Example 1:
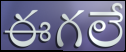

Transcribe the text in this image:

ఈగలే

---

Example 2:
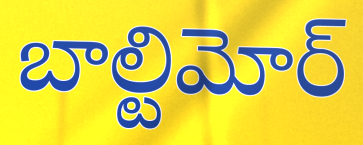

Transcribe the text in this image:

బాల్టిమోర్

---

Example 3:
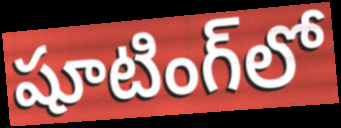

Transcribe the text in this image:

షూటింగ్‌లో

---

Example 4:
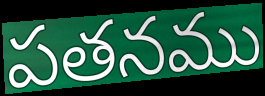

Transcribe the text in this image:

పతనము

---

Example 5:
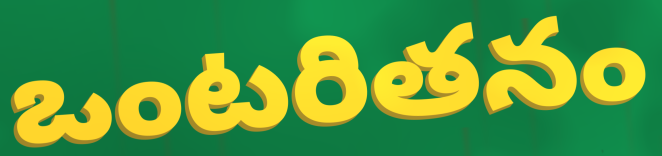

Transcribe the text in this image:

ఒంటరితనం